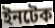
ইনটেক